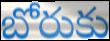
బోరుకు